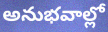
అనుభవాల్లో